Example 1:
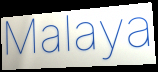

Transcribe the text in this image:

Malaya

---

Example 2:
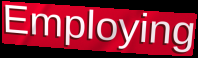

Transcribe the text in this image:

Employing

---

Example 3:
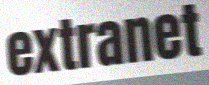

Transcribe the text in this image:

extranet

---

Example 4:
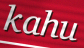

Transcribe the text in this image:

kahu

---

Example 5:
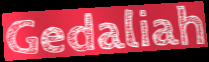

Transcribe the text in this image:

Gedaliah